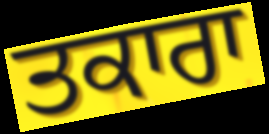
ਤਕਾਰਾ